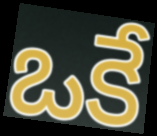
ఒకే